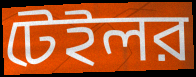
টেইলর